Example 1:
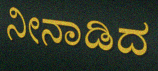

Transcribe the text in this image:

ನೀನಾಡಿದ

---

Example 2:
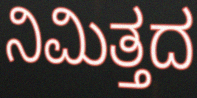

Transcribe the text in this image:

ನಿಮಿತ್ತದ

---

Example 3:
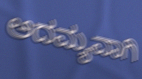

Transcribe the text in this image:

ಅದಮ್ಯವಾಗಿ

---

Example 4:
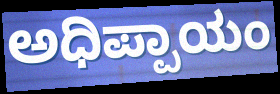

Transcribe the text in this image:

ಅಧಿಪ್ಪಾಯಂ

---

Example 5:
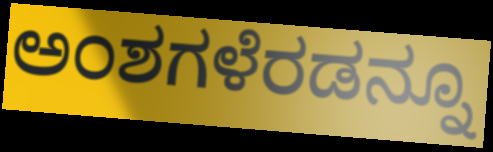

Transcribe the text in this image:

ಅಂಶಗಳೆರಡನ್ನೂ